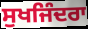
ਸੁਖਜਿੰਦਰਾ